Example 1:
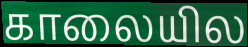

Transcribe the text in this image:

காலையில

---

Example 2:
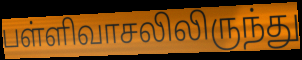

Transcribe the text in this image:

பள்ளிவாசலிலிருந்து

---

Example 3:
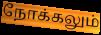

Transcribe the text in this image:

நோக்கலும்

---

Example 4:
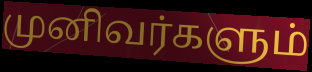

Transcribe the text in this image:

முனிவர்களும்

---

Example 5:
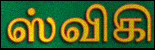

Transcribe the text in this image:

ஸ்விகி